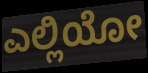
ಎಲ್ಲಿಯೋ